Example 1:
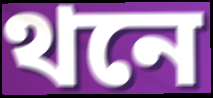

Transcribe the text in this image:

থনে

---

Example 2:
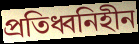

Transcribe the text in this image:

প্রতিধ্বনিহীন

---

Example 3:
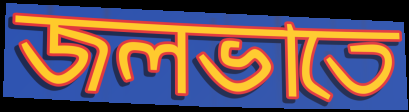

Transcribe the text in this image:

জলভাতে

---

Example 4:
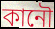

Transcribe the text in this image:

কানৌ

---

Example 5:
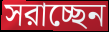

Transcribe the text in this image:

সরাচ্ছেন